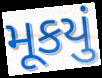
મૂકયું